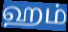
ஹம்